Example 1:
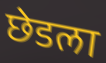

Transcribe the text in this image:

छेडला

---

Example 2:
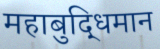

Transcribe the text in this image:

महाबुद्धिमान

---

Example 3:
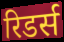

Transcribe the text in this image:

रिडर्स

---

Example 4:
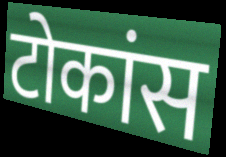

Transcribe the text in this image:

टोकांस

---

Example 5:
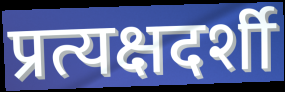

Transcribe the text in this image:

प्रत्यक्षदर्शी